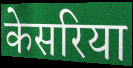
केसरिया